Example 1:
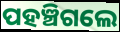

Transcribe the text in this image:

ପହଞ୍ଚିଗଲେ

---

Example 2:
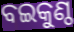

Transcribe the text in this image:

ବଇକୁଣ୍ଠ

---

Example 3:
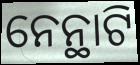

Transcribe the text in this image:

ନେନ୍ଥାଟି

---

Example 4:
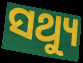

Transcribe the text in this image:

ସଥ୍ୟୁ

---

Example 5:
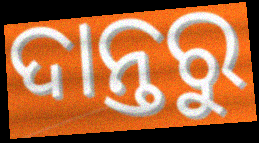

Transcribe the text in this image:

ଦାନ୍ତରୁ